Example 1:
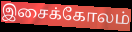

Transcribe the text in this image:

இசைக்கோலம்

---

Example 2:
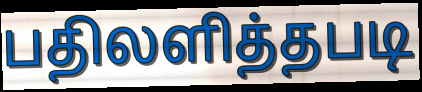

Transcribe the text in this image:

பதிலளித்தபடி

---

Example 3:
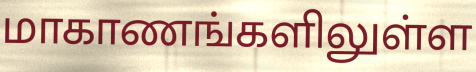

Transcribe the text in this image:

மாகாணங்களிலுள்ள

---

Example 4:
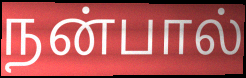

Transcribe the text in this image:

நன்பால்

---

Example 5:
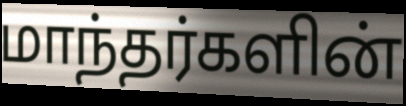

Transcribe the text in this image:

மாந்தர்களின்